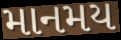
માનમય